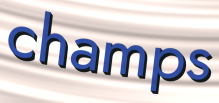
champs